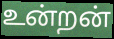
உன்றன்